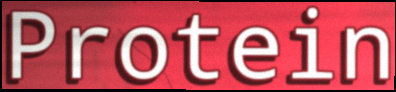
Protein